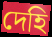
দেহি